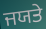
ਜਯਤੇ